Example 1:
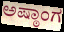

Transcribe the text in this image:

ಅಷ್ಠಾಂಗ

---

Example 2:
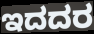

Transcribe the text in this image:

ಇದದರ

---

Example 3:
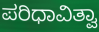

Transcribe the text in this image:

ಪರಿಧಾವಿತ್ವಾ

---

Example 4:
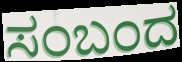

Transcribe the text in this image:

ಸಂಬಂದ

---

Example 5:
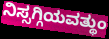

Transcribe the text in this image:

ನಿಸ್ಸಗ್ಗಿಯವತ್ಥುಂ